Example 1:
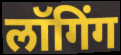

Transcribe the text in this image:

लॉगिंग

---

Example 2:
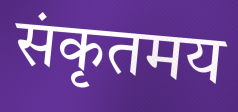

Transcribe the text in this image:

संकृतमय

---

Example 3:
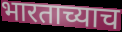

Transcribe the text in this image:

भारताच्याच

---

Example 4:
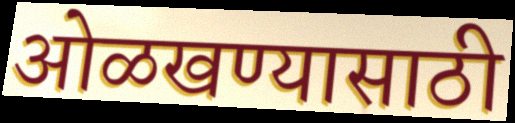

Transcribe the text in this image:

ओळखण्यासाठी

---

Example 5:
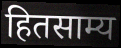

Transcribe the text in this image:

हितसाम्य